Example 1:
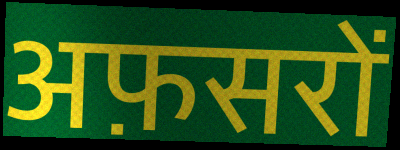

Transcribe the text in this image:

अफ़सरों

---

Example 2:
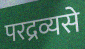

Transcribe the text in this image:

परद्रव्यसे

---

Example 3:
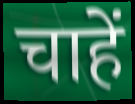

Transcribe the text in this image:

चाहें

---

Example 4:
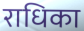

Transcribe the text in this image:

राधिका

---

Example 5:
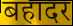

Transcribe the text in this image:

बहादर